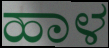
ಹಾಳ